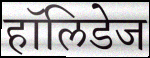
हॉलिडेज